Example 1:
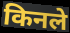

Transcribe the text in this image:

किनले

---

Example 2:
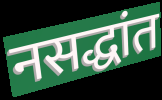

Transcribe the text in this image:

नसद्धांत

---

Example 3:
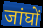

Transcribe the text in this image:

जांघों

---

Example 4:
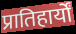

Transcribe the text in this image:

प्रातिहार्यों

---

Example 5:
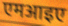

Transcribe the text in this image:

एमआइए